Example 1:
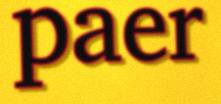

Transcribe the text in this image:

paer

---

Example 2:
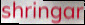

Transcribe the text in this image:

shringar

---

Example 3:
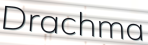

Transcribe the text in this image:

Drachma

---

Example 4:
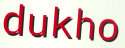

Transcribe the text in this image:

dukho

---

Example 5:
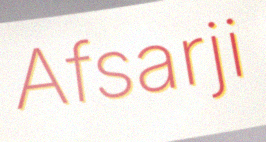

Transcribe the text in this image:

Afsarji